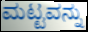
ಮಟ್ಟವನ್ನು